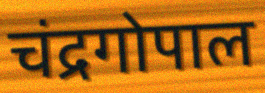
चंद्रगोपाल